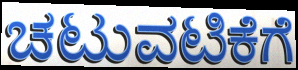
ಚಟುವಟಿಕೆಗೆ